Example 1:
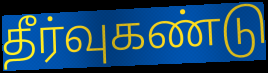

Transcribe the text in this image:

தீர்வுகண்டு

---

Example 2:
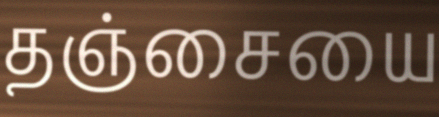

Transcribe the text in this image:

தஞ்சையை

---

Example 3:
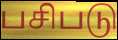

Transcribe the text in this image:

பசிபடு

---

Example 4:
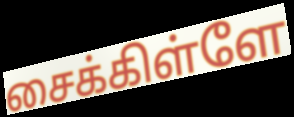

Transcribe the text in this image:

சைக்கிள்ளே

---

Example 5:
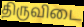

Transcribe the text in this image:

திருவிடை